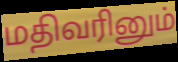
மதிவரினும்